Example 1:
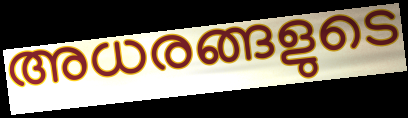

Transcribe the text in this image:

അധരങ്ങളുടെ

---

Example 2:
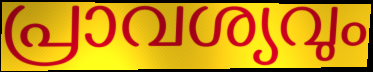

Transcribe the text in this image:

പ്രാവശ്യവും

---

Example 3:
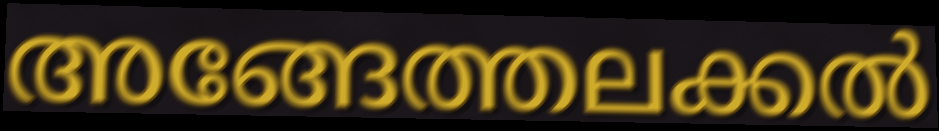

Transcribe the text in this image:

അങ്ങേത്തലക്കൽ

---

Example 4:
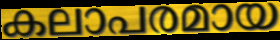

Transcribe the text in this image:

കലാപരമായ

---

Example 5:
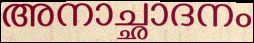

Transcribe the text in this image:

അനാച്ഛാദനം